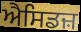
ਐਸਿਡਜ਼